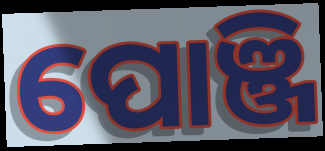
ପୋଞ୍ଜି